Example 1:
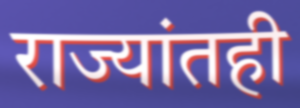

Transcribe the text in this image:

राज्यांतही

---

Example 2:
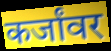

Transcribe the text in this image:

कर्जांवर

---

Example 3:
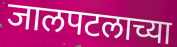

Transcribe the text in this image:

जालपटलाच्या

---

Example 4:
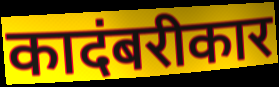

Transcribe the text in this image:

कादंबरीकार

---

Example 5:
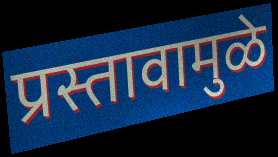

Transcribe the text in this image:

प्रस्तावामुळे